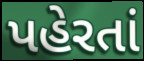
પહેરતાં